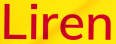
Liren